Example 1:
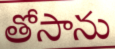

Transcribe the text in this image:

తోసాను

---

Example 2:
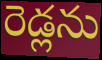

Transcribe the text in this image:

రెడ్లను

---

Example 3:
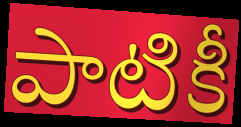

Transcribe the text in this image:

పాటికీ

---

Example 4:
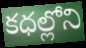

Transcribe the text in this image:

కధల్లోని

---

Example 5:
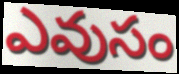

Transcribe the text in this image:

ఎవుసం